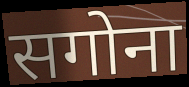
सगोना